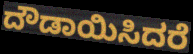
ದೌಡಾಯಿಸಿದರೆ